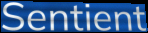
Sentient